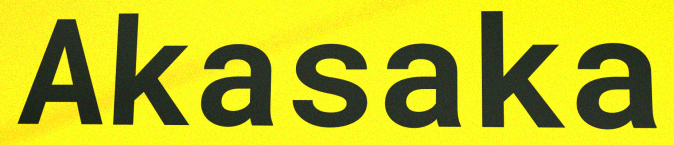
Akasaka